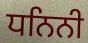
ਧਨਿਨੀ